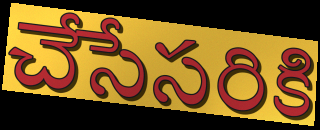
చేసేసరికి